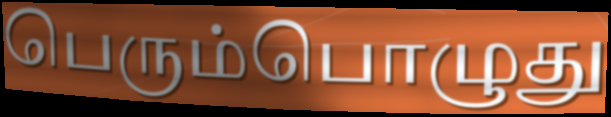
பெரும்பொழுது